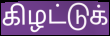
கிழட்டுக்